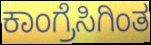
ಕಾಂಗ್ರೆಸಿಗಿಂತ